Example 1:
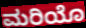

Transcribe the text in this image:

ಮರಿಯೊ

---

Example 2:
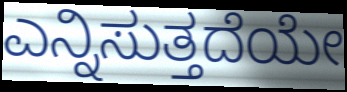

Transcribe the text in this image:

ಎನ್ನಿಸುತ್ತದೆಯೇ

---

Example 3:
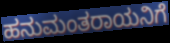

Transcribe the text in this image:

ಹನುಮಂತರಾಯನಿಗೆ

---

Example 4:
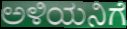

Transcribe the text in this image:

ಅಳಿಯನಿಗೆ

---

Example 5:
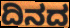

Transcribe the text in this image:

ದಿನದ